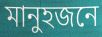
মানুহজনে